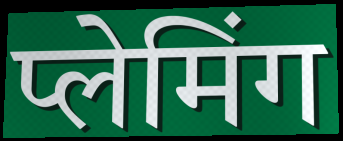
प्लेमिंग